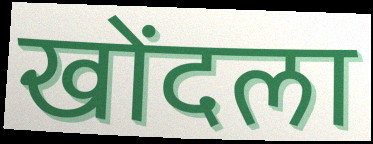
खोंदला